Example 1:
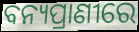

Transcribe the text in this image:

ବନ୍ୟପ୍ରାଣୀରେ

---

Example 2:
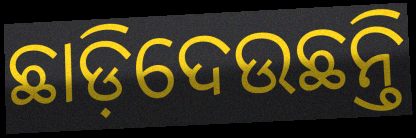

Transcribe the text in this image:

ଛାଡ଼ିଦେଉଛନ୍ତି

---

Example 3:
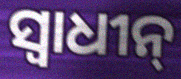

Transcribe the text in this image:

ସ୍ଵାଧୀନ୍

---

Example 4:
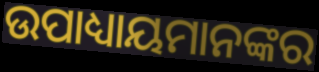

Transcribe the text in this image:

ଉପାଧ୍ୟାୟମାନଙ୍କର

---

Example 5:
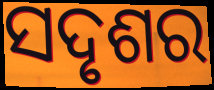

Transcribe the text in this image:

ସଦୃଶର